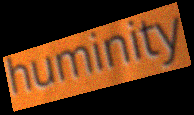
huminity